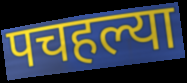
पचहल्या